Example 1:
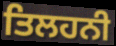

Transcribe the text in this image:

ਤਿਲਹਨੀ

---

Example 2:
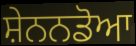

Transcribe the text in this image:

ਸ਼ੇਨਨਡੋਆ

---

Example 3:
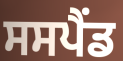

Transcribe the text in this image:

ਸਸਪੈੰਡ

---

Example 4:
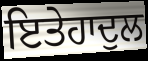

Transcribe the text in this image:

ਇਤੇਹਾਦੁਲ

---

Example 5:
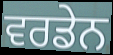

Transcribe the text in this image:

ਵਰਡੇਨ